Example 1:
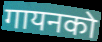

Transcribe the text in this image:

गायनको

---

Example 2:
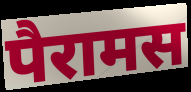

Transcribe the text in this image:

पैरामस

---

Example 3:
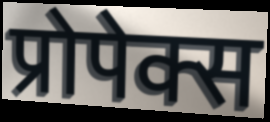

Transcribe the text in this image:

प्रोपेक्स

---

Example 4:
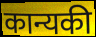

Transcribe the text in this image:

कान्यकी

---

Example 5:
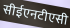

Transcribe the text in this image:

सीईएनटीएसी